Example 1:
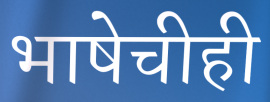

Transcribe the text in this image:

भाषेचीही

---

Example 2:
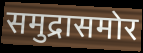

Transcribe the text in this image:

समुद्रासमोर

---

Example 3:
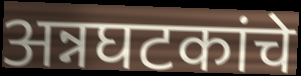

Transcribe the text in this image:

अन्नघटकांचे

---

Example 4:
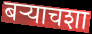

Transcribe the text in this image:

बऱ्याचशा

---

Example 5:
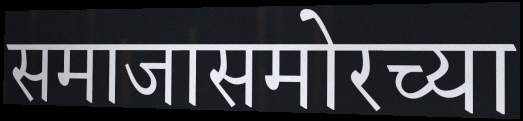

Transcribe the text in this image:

समाजासमोरच्या